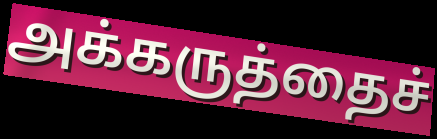
அக்கருத்தைச்